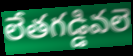
లేతగడ్డివలె